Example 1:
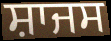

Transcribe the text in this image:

ਸ਼ਾਜਸ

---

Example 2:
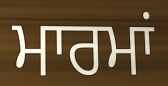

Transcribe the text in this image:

ਮਾਰਮਾਂ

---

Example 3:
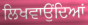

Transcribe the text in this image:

ਲਿਖਵਾਉਂਦਿਆਂ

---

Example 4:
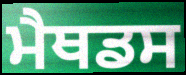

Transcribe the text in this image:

ਮੈਥਡਸ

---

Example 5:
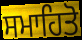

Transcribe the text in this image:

ਸਮਾਹਿਤੋ